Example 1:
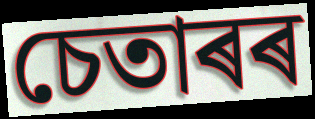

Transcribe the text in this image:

চেতাৰৰ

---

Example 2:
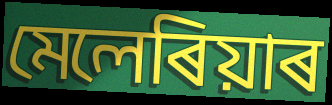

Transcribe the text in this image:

মেলেৰিয়াৰ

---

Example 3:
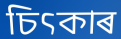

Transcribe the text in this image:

চিৎকাৰ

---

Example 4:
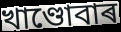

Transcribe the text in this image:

খাণ্ডোবাৰ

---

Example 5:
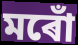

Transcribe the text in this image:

মৰোঁ